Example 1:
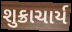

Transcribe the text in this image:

શુક્રાચાર્ય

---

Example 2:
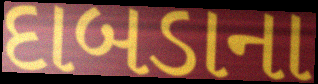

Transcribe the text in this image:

દાબડાના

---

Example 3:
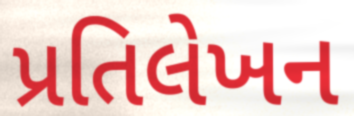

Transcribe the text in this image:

પ્રતિલેખન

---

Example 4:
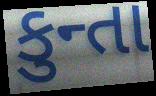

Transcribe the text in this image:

કુન્તા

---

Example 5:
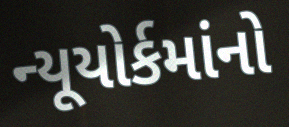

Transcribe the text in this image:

ન્યૂયોર્કમાંનો